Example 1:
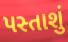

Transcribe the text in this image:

પસ્તાશું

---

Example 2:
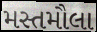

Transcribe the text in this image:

મસ્તમૌલા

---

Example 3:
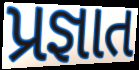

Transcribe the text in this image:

પ્રજ્ઞાત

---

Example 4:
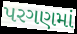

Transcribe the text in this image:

પરગણમાં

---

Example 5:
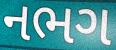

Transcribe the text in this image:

નભગ